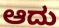
ಆದು